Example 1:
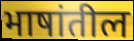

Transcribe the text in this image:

भाषांतील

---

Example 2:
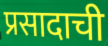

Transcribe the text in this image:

प्रसादाची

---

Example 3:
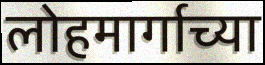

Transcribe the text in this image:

लोहमार्गाच्या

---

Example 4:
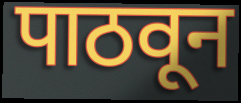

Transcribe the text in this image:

पाठवून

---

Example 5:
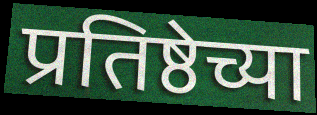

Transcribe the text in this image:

प्रतिष्ठेच्या